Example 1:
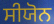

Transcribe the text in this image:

ਸੀਯੋਨ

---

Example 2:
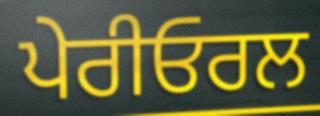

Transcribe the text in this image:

ਪੇਰੀਓਰਲ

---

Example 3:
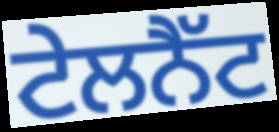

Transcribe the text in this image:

ਟੇਲਨੈੱਟ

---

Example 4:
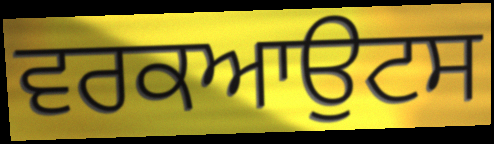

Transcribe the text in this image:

ਵਰਕਆਉਟਸ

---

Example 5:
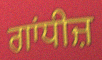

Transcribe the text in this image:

ਗਾਂਧੀਜ਼